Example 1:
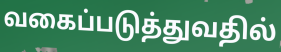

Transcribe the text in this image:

வகைப்படுத்துவதில்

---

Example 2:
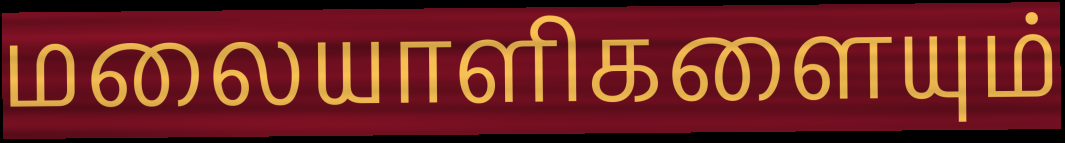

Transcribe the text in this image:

மலையாளிகளையும்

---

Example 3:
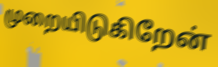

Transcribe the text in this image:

முறையிடுகிறேன்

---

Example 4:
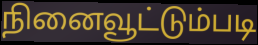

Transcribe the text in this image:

நினைவூட்டும்படி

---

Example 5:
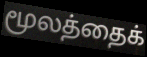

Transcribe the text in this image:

மூலத்தைக்